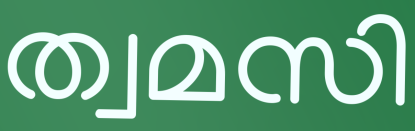
ത്വമസി